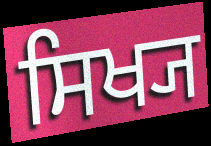
ਸਿਖ੍ਯ